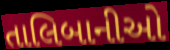
તાલિબાનીઓ